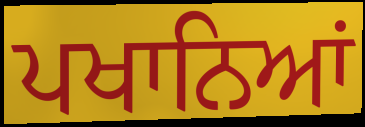
ਪਖਾਨਿਆਂ